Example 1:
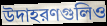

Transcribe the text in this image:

উদাহরণগুলিও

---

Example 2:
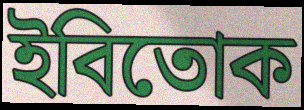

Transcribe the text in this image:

ইবিতোক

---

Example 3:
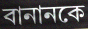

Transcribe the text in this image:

বানানকে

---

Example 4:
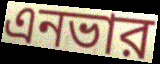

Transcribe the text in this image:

এনভার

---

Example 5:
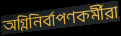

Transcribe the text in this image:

অগ্নিনির্বাপণকর্মীরা